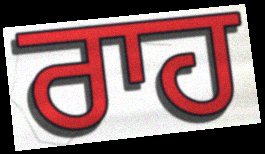
ਰਾਹ